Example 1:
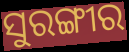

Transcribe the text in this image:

ସୁରଙ୍ଗୀର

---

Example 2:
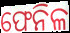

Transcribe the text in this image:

ଫେନିଳ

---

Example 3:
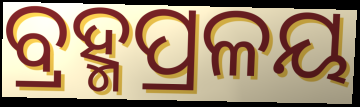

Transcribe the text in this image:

ବ୍ରହ୍ମପ୍ରଳୟ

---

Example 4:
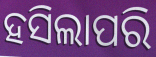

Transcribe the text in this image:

ହସିଲାପରି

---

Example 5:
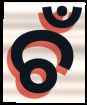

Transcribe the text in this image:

ଚଁ